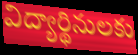
విద్యార్థినులకు